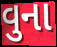
વુના